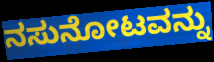
ನಸುನೋಟವನ್ನು